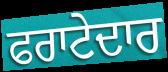
ਫਰਾਟੇਦਾਰ